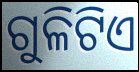
ଗୁଳିଟିଏ